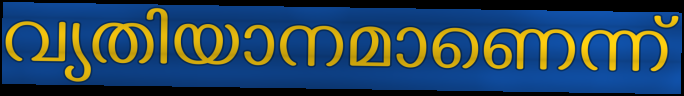
വ്യതിയാനമാണെന്ന്